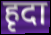
हृदा